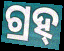
ଗ୍ରହ୍